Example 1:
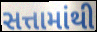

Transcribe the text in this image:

સત્તામાંથી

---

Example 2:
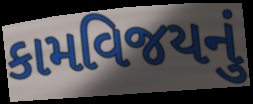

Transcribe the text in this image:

કામવિજયનું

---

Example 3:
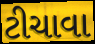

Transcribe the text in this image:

ટીચાવા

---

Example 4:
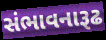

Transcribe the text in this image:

સંભાવનારૂઢ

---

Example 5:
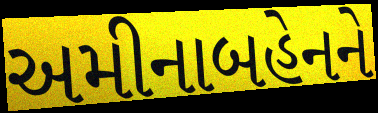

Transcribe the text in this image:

અમીનાબહેનને